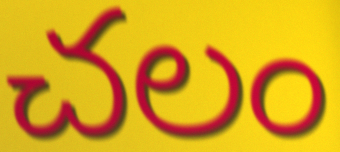
చలం